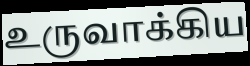
உருவாக்கிய